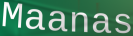
Maanas